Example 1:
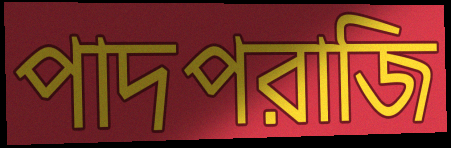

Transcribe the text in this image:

পাদপরাজি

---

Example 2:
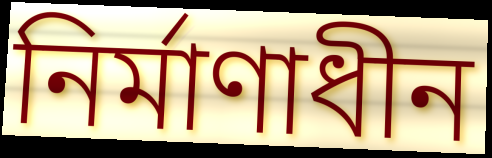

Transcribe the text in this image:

নির্মাণাধীন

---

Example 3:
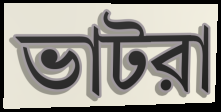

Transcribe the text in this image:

ভাটরা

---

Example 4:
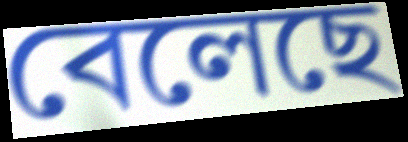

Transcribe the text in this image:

বেলেছে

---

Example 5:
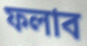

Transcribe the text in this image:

ফলাব